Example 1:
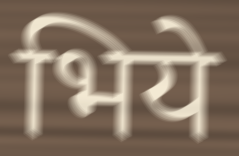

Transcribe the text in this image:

भिये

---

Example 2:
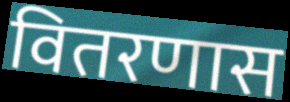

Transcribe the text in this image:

वितरणास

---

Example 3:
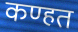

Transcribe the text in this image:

कण्हत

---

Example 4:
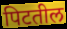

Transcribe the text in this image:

पिटतील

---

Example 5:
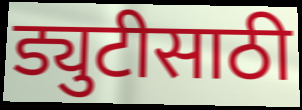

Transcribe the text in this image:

ड्युटीसाठी